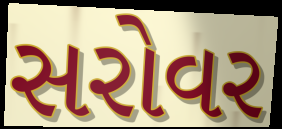
સરોવર